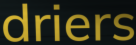
driers